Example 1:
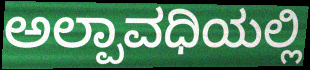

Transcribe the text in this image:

ಅಲ್ಪಾವಧಿಯಲ್ಲಿ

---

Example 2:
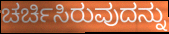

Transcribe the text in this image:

ಚರ್ಚಿಸಿರುವುದನ್ನು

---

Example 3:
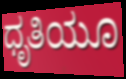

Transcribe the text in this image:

ಧೃತಿಯೂ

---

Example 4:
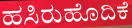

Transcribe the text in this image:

ಹಸಿರುಹೊದಿಕೆ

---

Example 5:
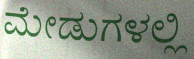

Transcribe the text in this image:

ಮೇಡುಗಳಲ್ಲಿ